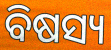
ବିଷସ୍ୟ